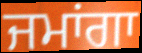
ਜਮਾਂਗਾ